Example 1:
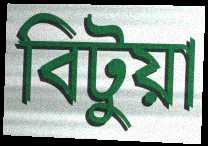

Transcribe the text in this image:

বিটুয়া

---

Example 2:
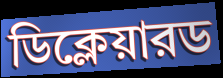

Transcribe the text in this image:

ডিক্লেয়ারড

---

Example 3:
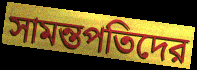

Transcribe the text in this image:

সামন্তপতিদের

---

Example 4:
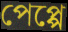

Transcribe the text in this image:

পেপ্পে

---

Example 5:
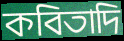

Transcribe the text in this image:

কবিতাদি